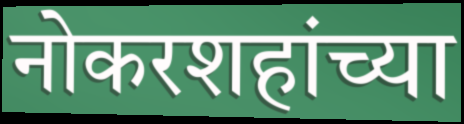
नोकरशहांच्या